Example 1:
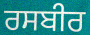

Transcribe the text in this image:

ਰਸਬੀਰ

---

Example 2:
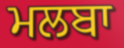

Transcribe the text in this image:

ਮਲਬਾ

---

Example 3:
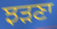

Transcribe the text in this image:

ਝੜਣਾ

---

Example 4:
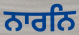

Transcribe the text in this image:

ਨਾਰਨਿ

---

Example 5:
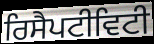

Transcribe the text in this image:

ਰਿਸੈਪਟੀਵਿਟੀ